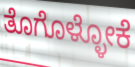
ತೊಗೊಳ್ಳೋಕೆ